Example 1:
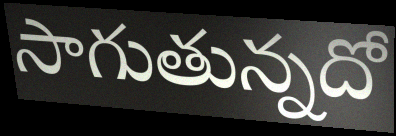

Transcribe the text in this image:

సాగుతున్నదో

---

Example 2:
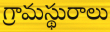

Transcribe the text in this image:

గ్రామస్థురాలు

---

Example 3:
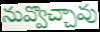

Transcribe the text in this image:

నువ్వొచ్చావు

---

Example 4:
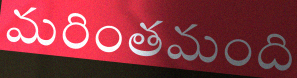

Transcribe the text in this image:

మరింతమంది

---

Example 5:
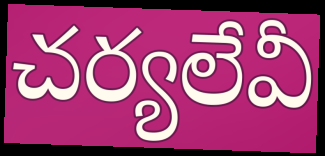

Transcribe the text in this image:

చర్యలేవీ